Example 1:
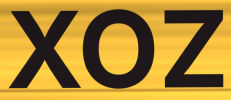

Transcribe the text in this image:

XOZ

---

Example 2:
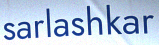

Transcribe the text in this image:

sarlashkar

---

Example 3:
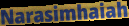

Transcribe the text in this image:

Narasimhaiah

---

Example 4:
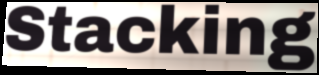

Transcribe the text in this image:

Stacking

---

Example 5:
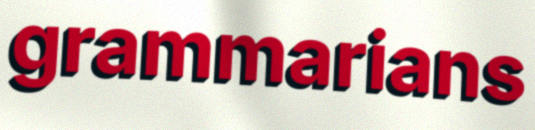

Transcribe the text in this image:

grammarians